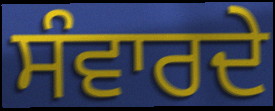
ਸੰਵਾਰਦੇ